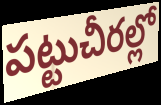
పట్టుచీరల్లో